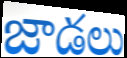
జాడలు